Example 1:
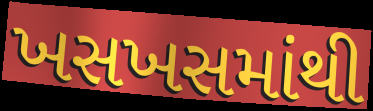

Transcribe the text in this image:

ખસખસમાંથી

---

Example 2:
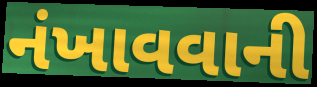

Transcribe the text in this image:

નંખાવવાની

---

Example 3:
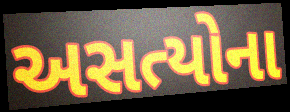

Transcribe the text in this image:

અસત્યોના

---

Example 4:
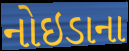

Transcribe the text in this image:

નોઇડાના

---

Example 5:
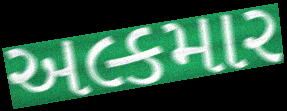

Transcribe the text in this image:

અલ્કમાર